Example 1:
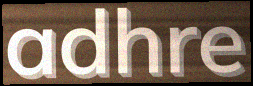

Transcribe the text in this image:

adhre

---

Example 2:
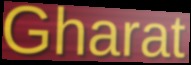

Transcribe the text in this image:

Gharat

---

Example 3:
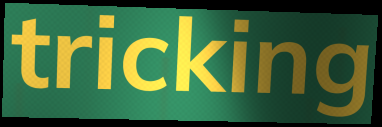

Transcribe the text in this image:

tricking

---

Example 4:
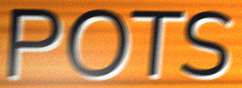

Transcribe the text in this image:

POTS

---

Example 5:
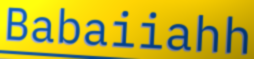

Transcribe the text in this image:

Babaiiahh